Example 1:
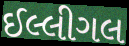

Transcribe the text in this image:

ઈલ્લીગલ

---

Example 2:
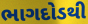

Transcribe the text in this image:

ભાગદોડથી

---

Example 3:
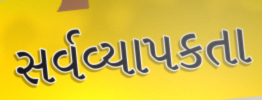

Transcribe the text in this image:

સર્વવ્યાપકતા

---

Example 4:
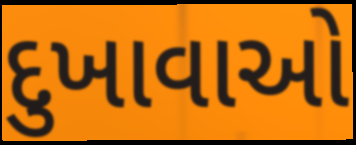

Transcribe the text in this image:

દુખાવાઓ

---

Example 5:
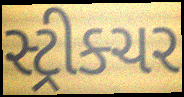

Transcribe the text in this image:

સ્ટ્રીક્ચર